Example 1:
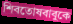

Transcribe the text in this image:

শিবতোষবাবুকে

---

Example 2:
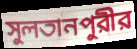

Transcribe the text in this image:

সুলতানপুরীর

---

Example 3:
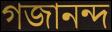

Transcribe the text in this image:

গজানন্দ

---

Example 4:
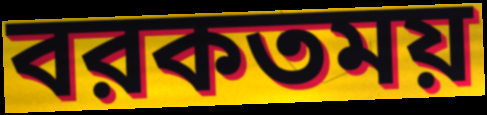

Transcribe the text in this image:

বরকতময়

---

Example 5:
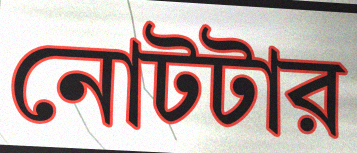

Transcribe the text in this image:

নোটটার